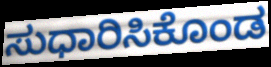
ಸುಧಾರಿಸಿಕೊಂಡ